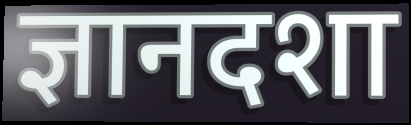
ज्ञानदशा